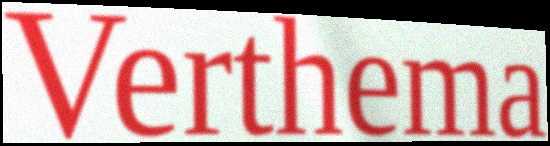
Verthema